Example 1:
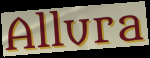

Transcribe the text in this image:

Allura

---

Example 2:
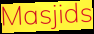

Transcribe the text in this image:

Masjids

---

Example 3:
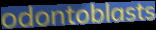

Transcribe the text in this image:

odontoblasts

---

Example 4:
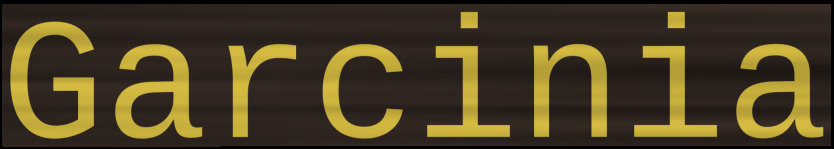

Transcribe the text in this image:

Garcinia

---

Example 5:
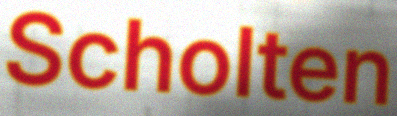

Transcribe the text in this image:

Scholten